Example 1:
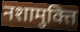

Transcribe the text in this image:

नशामुक्ति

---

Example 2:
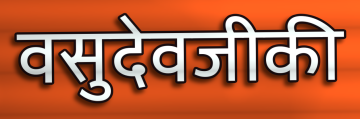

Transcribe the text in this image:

वसुदेवजीकी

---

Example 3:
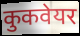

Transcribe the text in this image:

कुकवेयर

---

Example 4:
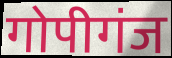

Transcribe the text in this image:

गोपीगंज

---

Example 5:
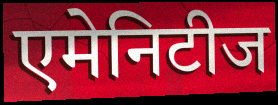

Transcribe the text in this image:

एमेनिटीज